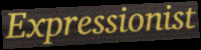
Expressionist